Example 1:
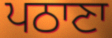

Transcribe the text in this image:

ਪਠਾਣਾ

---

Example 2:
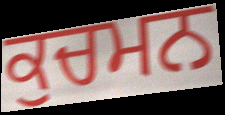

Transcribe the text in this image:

ਕੁਚਮਨ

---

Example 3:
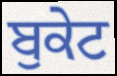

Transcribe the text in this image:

ਬੁਕੇਟ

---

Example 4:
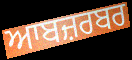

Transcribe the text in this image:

ਆਬਜ਼ਰਬਰ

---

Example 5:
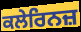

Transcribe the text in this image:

ਕਲੇਰਿਨਜ਼